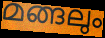
മങ്ങലും